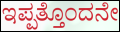
ಇಪ್ಪತ್ತೊಂದನೇ